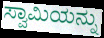
ಸ್ವಾಮಿಯನ್ನು